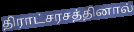
திராட்சரசத்தினால்